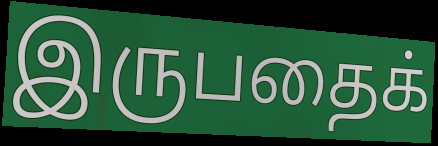
இருபதைக்